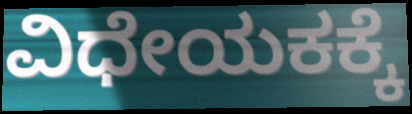
ವಿಧೇಯಕಕ್ಕೆ